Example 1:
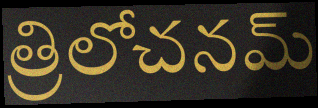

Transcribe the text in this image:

త్రిలోచనమ్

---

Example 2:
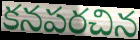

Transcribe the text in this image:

కనపరచిన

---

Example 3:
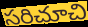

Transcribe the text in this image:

సరిచూచి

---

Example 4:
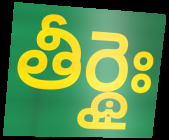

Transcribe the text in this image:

తీర్థైః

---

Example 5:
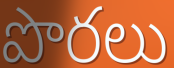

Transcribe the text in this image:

పొరలు